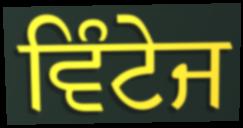
ਵਿੰਟੇਜ